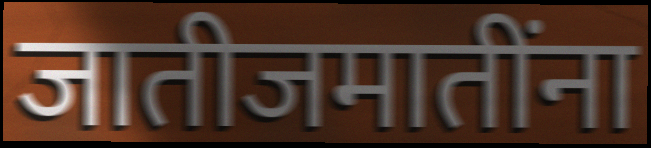
जातीजमातींना